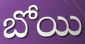
బోయి